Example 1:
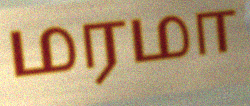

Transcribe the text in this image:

மரமா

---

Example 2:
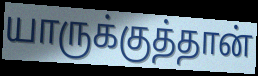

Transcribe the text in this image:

யாருக்குத்தான்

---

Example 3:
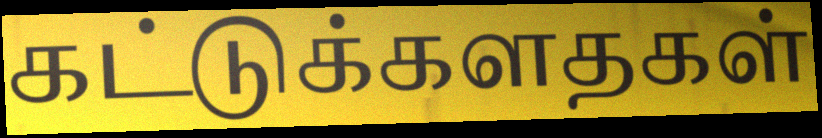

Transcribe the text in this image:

கட்டுக்களதகள்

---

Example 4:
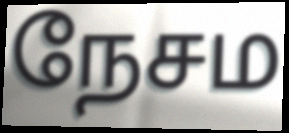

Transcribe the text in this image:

நேசம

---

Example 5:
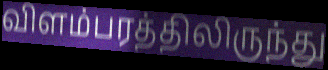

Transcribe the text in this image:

விளம்பரத்திலிருந்து